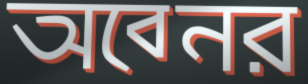
অব্নের